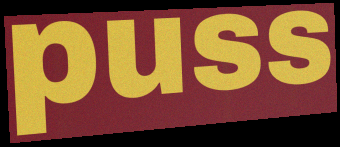
puss